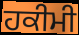
ਹਕੀਮੀ